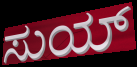
ಸುಯ್